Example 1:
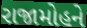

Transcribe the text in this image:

રાજામોહને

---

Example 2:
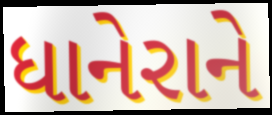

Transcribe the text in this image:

ધાનેરાને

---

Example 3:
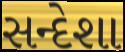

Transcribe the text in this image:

સન્દેશા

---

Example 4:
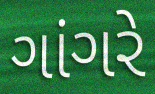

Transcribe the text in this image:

ગાંગરે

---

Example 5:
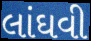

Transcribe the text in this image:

લાંઘવી